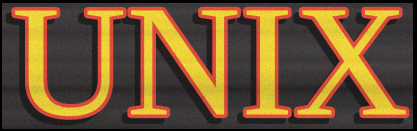
UNIX